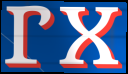
rx